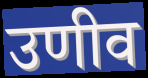
उणीव